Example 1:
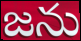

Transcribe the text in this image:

జను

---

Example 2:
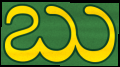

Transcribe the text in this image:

బు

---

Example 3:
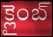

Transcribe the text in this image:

క్లైంబ్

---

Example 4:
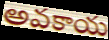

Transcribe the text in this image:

అవకాయ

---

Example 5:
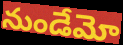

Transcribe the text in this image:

నుండేమో